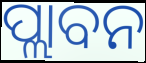
ପ୍ଲାବନ